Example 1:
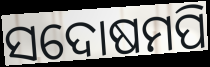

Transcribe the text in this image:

ସଦୋଷମପି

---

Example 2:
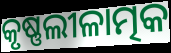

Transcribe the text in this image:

କୃଷ୍ଣଲୀଳାତ୍ମକ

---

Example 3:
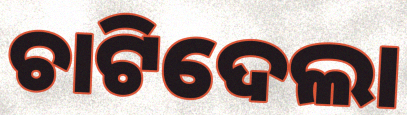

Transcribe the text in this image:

ଚାଟିଦେଲା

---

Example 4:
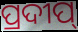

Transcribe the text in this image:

ପ୍ରଦୀପ୍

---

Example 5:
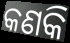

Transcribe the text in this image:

କଣକି